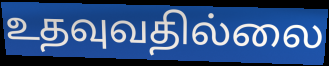
உதவுவதில்லை